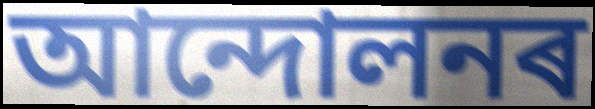
আন্দোলনৰ